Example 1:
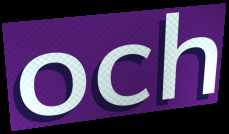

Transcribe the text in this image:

och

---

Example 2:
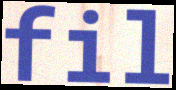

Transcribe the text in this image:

fil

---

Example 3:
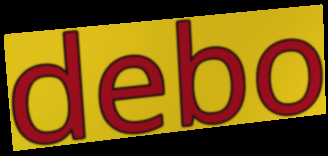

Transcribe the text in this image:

debo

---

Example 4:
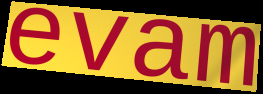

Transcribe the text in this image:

evam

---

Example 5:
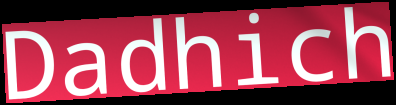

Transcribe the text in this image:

Dadhich